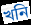
খনি